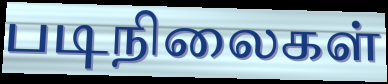
படிநிலைகள்